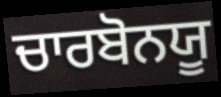
ਚਾਰਬੋਨਯੂ